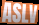
ASLV